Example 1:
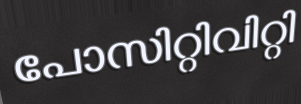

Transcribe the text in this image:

പോസിറ്റിവിറ്റി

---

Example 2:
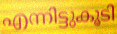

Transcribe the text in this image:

എന്നിട്ടുകൂടി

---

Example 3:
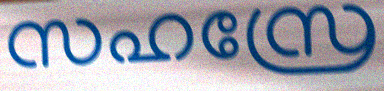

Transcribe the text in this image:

സഹസ്രേ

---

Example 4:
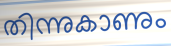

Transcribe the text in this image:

തിന്നുകാണും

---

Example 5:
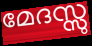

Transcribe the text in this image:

മേദസ്സു